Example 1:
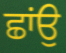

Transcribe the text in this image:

ਛਾਂਉ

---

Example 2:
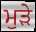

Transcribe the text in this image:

ਮੁੜੇ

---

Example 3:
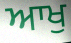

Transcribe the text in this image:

ਆਖੁ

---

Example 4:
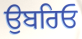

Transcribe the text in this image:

ਉਬਰਿਓ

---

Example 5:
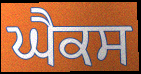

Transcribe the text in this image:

ਘੈਕਸ